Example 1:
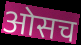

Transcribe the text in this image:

ओसच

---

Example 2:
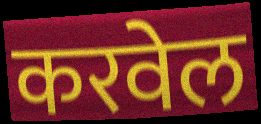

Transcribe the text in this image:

करवेल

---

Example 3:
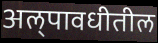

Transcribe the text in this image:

अल्पावधीतील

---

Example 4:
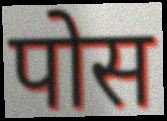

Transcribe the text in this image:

पोस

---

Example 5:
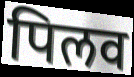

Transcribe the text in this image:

पिलव